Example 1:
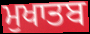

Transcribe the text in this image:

ਮੁਖਾਤਬ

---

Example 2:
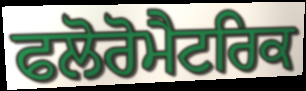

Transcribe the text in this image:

ਫਲੋਰੋਮੈਟਰਿਕ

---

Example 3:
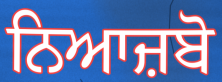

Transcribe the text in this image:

ਨਿਆਜ਼ਬੋ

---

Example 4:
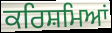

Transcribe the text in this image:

ਕਰਿਸ਼ਮਿਆਂ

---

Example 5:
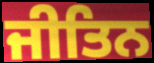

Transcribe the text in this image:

ਜੀਤਿਨ